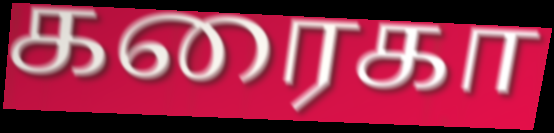
கரைகா